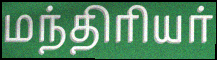
மந்திரியர்